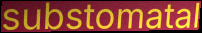
substomatal